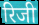
रिजी